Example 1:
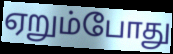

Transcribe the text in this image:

ஏறும்போது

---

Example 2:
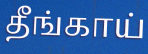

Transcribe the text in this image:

தீங்காய்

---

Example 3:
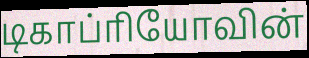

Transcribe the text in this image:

டிகாப்ரியோவின்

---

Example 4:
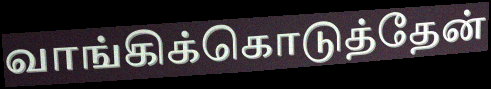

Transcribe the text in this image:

வாங்கிக்கொடுத்தேன்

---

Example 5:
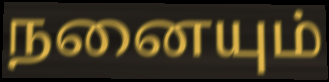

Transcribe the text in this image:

நனையும்